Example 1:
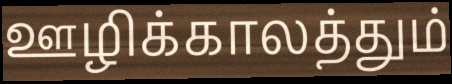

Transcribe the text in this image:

ஊழிக்காலத்தும்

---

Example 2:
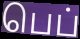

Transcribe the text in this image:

பெப்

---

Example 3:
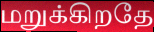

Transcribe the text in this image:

மறுக்கிறதே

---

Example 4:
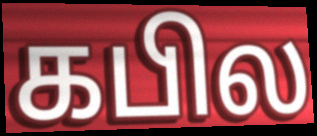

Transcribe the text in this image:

கபில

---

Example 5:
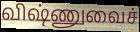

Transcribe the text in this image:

விஷ்ணுவைச்